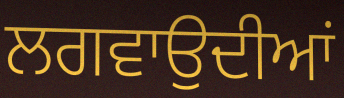
ਲਗਵਾਉਦੀਆਂ